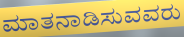
ಮಾತನಾಡಿಸುವವರು